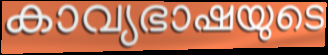
കാവ്യഭാഷയുടെ